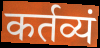
कर्तव्यं